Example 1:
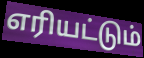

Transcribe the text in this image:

எரியட்டும்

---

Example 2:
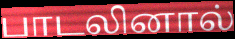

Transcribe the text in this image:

பாடலினால்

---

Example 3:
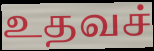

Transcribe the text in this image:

உதவச்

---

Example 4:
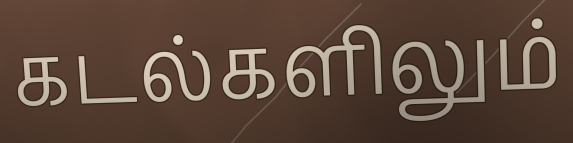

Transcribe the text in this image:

கடல்களிலும்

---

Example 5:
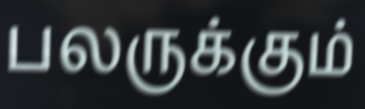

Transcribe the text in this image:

பலருக்கும்